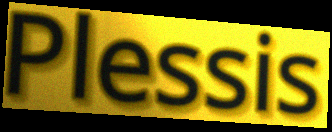
Plessis